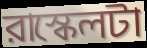
রাস্কেলটা